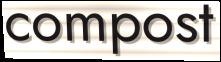
compost